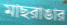
মাছরাঙার